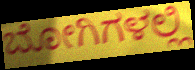
ಬೋಗಿಗಳಲ್ಲಿ